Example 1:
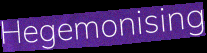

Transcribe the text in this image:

Hegemonising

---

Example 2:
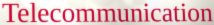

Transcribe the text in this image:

Telecommunication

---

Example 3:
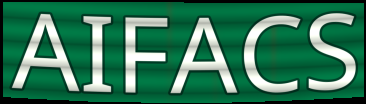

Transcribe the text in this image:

AIFACS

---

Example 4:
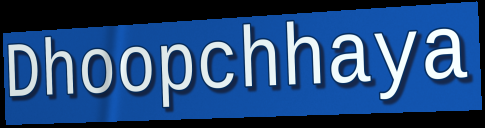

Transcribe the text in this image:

Dhoopchhaya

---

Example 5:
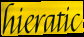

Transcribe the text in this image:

hieratic